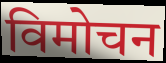
विमोचन